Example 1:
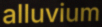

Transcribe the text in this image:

alluvium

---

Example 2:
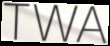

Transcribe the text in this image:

TWA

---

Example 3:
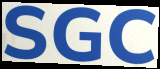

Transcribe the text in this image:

SGC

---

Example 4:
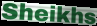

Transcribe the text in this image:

Sheikhs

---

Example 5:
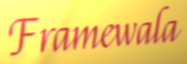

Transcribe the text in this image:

Framewala